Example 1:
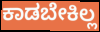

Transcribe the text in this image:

ಕಾಡಬೇಕಿಲ್ಲ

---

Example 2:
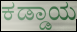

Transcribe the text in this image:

ಕಡ್ಡಾಯ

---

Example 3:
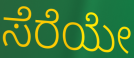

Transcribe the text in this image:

ಸೆರೆಯೇ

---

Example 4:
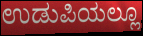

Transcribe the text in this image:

ಉಡುಪಿಯಲ್ಲೂ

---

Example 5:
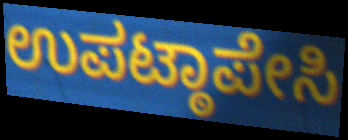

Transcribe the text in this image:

ಉಪಟ್ಠಾಪೇಸಿ